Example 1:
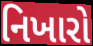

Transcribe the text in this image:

નિખારો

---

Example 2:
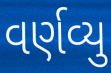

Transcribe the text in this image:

વર્ણવ્યુ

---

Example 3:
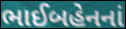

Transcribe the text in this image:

ભાઈબહેનનાં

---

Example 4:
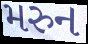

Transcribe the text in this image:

મરુન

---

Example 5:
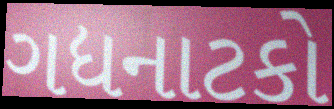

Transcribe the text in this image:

ગદ્યનાટકો